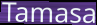
Tamasa